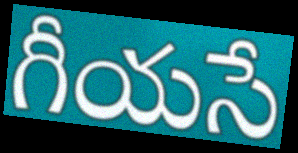
గీయసే